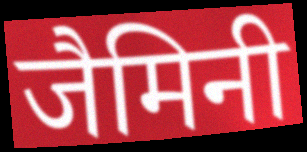
जैमिनी